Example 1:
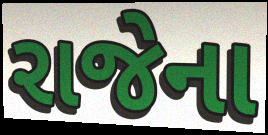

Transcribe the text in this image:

રાજેના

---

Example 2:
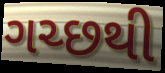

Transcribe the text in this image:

ગચ્છથી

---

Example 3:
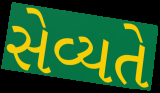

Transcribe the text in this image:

સેવ્યતે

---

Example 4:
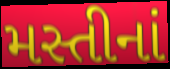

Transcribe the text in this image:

મસ્તીનાં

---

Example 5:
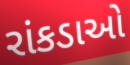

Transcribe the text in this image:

રાંકડાઓ